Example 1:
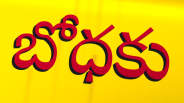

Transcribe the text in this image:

బోధకు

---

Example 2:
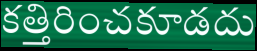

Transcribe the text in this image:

కత్తిరించకూడదు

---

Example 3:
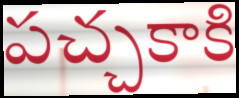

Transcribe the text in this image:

పచ్చకాకి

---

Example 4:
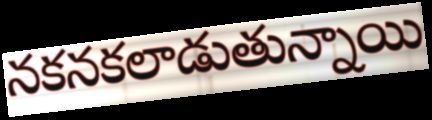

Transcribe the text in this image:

నకనకలాడుతున్నాయి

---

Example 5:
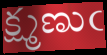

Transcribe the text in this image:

క్ష్మణుఁ